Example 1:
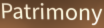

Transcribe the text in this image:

Patrimony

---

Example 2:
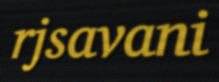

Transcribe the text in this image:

rjsavani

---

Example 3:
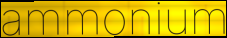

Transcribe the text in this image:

ammonium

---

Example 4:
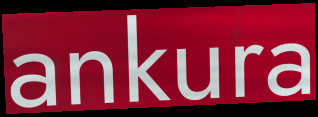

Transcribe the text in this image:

ankura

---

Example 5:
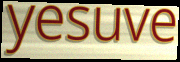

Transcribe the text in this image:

yesuve